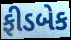
ફીડબેક